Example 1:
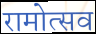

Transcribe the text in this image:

रामोत्सव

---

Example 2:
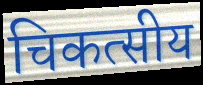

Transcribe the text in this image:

चिकत्सीय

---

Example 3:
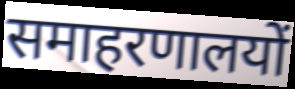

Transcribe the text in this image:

समाहरणालयों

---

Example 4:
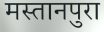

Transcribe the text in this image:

मस्तानपुरा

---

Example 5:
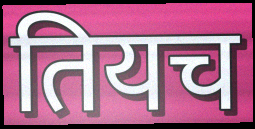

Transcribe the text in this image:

तियच